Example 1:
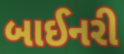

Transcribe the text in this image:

બાઈનરી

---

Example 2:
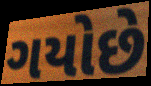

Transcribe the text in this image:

ગયોછે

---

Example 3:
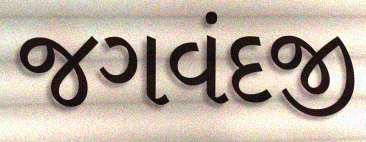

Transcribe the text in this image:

જગવંદજી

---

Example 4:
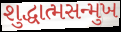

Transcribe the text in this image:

શુદ્ધાત્મસન્મુખ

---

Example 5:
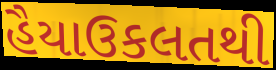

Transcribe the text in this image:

હૈયાઉકલતથી